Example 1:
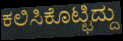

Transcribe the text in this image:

ಕಲಿಸಿಕೊಟ್ಟಿದ್ದು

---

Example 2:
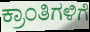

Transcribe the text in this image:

ಕ್ರಾಂತಿಗಳಿಗೆ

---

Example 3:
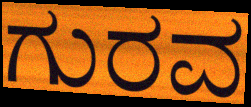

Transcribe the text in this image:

ಗುರವ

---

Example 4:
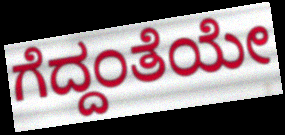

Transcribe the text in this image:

ಗೆದ್ದಂತೆಯೇ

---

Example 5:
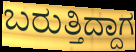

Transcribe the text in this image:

ಬರುತ್ತಿದ್ದಾಗ